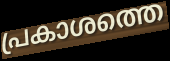
പ്രകാശത്തെ